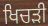
ਖਿਚੜੀ